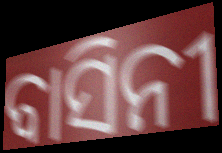
ବାସିନୀ